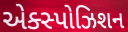
એક્સ્પોઝિશન